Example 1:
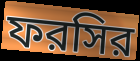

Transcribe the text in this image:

ফরসির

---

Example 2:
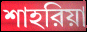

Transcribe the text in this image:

শাহরিয়া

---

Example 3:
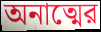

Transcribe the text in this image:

অনাত্মের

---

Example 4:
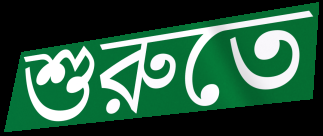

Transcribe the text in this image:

শুরুতে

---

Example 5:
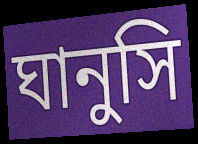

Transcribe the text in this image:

ঘানুসি